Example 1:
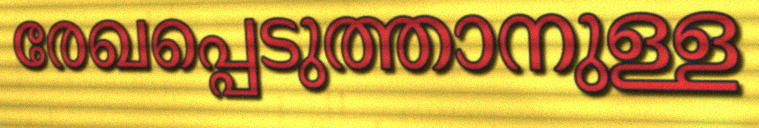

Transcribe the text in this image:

രേഖപ്പെടുത്താനുള്ള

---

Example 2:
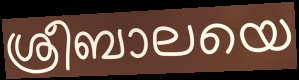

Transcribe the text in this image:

ശ്രീബാലയെ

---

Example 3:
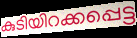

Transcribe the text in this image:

കുടിയിറക്കപ്പെട്ട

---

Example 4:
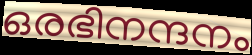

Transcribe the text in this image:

ഒരഭിനന്ദനം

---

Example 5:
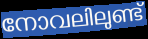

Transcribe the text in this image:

നോവലിലുണ്ട്